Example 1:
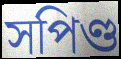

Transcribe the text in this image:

সপিণ্ড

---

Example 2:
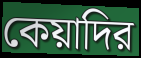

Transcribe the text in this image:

কেয়াদির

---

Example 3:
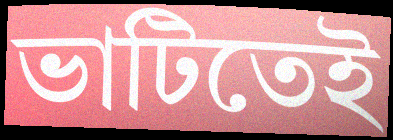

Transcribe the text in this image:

ভাটিতেই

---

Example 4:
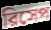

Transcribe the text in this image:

রিসেপ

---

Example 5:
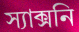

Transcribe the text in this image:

স্যাক্সনি